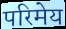
परिमेय